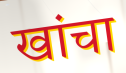
खांचा